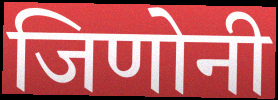
जिणोनी